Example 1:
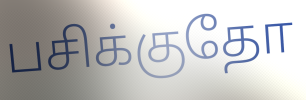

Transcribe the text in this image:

பசிக்குதோ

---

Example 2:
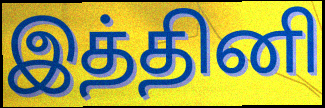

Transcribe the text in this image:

இத்தினி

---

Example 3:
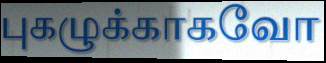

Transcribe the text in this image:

புகழுக்காகவோ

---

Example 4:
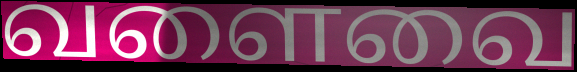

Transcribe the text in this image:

வளைவை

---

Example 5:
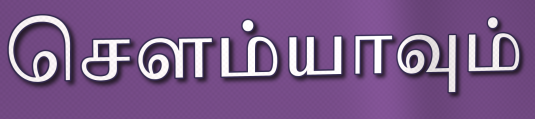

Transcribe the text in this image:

சௌம்யாவும்